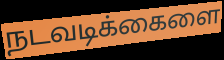
நடவடிக்கைளை